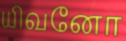
யிவனோ